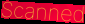
Scanned